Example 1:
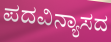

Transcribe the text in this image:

ಪದವಿನ್ಯಾಸದ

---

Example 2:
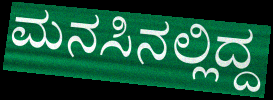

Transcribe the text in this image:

ಮನಸಿನಲ್ಲಿದ್ದ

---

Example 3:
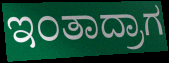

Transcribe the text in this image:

ಇಂತಾದ್ರಾಗ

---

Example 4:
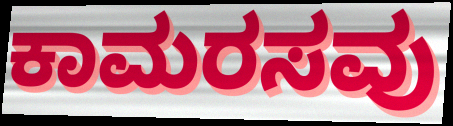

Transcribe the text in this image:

ಕಾಮರಸವು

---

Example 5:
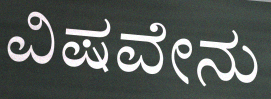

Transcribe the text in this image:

ವಿಷವೇನು